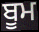
ਬੂਮ